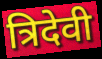
त्रिदेवी